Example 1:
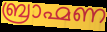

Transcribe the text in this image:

ബ്രാഹ്മണ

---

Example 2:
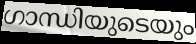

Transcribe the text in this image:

ഗാന്ധിയുടെയും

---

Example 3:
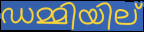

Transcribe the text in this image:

ഡമ്മിയില്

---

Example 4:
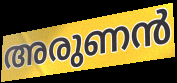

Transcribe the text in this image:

അരുണൻ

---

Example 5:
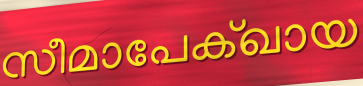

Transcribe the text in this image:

സീമാപേക്ഖായ